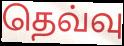
தெவ்வு